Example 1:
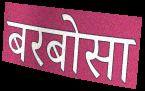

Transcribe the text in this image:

बरबोसा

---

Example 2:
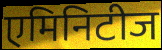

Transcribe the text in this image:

एमिनिटीज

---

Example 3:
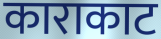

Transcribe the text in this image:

काराकाट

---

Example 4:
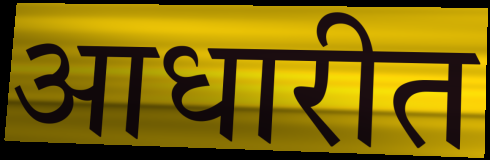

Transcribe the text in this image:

आधारीत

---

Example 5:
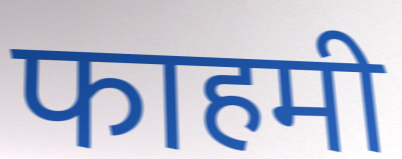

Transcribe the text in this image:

फाहमी